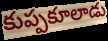
కుప్పకూలాడు